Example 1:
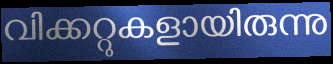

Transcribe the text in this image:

വിക്കറ്റുകളായിരുന്നു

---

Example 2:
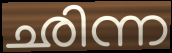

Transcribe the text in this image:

ഛിന്ന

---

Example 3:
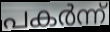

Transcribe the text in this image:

പകർന്ന്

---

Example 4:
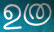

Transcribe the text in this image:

ഉത്ര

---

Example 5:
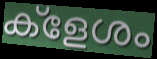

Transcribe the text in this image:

ക്ളേശം